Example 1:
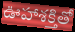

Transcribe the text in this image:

ఊహాశక్తితో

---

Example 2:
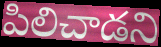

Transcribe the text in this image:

పిలిచాడని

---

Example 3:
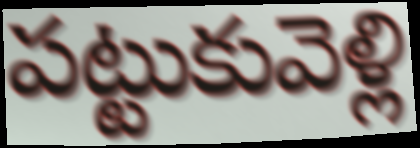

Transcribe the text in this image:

పట్టుకువెళ్లి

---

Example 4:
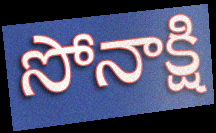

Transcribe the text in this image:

సోనాక్షి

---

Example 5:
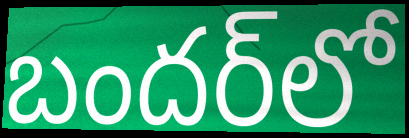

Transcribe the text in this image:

బందర్‌లో